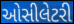
ઓસીલેટરી